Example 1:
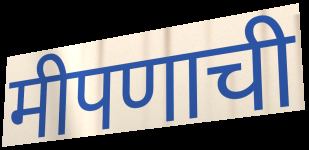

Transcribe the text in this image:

मीपणाची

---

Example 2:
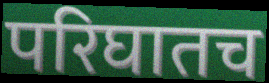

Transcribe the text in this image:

परिघातच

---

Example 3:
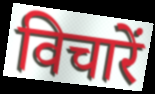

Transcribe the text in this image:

विचारें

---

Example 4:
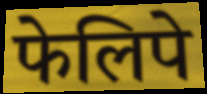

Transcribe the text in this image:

फेलिपे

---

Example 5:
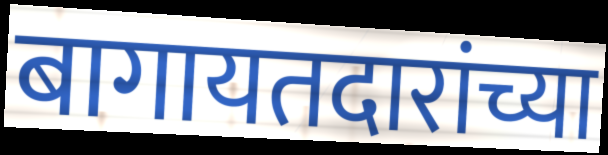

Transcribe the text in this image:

बागायतदारांच्या